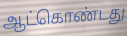
ஆட்கொண்டது